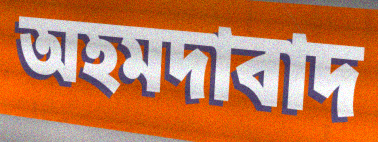
অহমদাবাদ